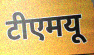
टीएमयू